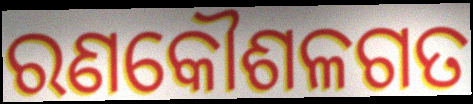
ରଣକୌଶଳଗତ